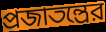
প্রজাতন্ত্রের